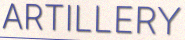
ARTILLERY